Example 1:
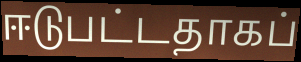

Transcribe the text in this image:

ஈடுபட்டதாகப்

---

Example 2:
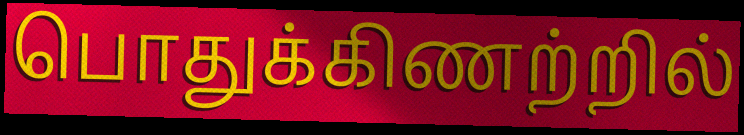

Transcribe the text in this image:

பொதுக்கிணற்றில்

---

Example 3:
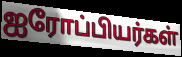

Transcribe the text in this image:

ஐரோப்பியர்கள்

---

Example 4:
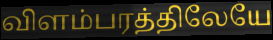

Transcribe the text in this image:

விளம்பரத்திலேயே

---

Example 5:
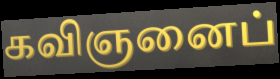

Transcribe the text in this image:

கவிஞனைப்